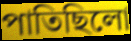
পাতিছিলো